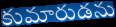
కుమారుడను